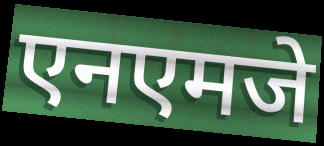
एनएमजे